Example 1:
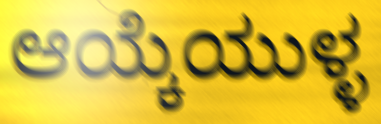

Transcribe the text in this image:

ಆಯ್ಕೆಯುಳ್ಳ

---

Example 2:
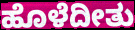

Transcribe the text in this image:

ಹೊಳೆದೀತು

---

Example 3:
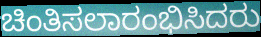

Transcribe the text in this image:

ಚಿಂತಿಸಲಾರಂಭಿಸಿದರು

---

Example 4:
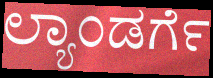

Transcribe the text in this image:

ಲ್ಯಾಂಡರ್ಗೆ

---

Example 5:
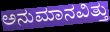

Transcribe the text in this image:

ಅನುಮಾನವಿತ್ತು